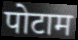
पोटाम